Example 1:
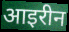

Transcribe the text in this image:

आइरीन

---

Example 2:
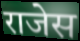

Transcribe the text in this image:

राजेस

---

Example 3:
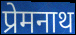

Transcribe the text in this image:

प्रेमनाथ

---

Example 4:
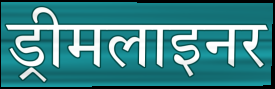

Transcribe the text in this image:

ड्रीमलाइनर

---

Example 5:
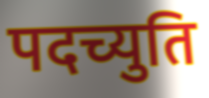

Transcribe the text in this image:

पदच्युति